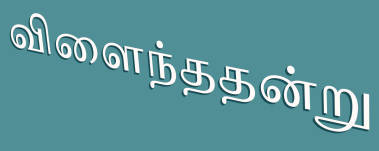
விளைந்ததன்று